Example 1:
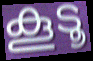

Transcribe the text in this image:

കൂടൂ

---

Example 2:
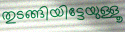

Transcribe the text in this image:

തുടങ്ങിയിട്ടേയുള്ളൂ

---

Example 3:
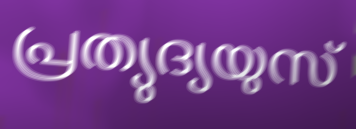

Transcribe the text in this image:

പ്രത്യുദ്യയുസ്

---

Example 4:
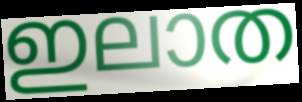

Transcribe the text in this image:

ഇലാത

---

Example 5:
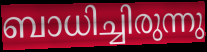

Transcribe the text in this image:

ബാധിച്ചിരുന്നു